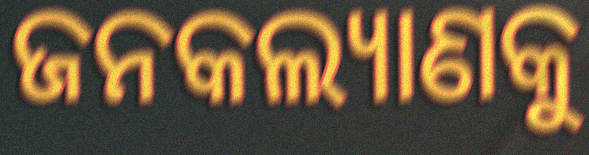
ଜନକଲ୍ୟାଣକୁ